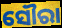
ସୌରା